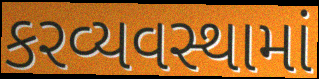
કરવ્યવસ્થામાં